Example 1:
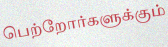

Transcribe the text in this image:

பெற்றோர்களுக்கும்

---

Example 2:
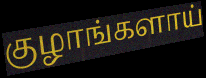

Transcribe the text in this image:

குழாங்களாய்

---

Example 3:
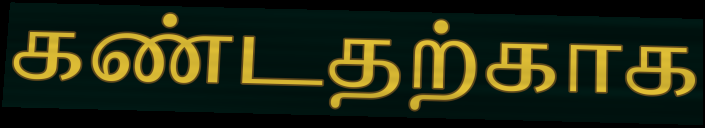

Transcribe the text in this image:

கண்டதற்காக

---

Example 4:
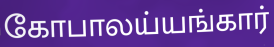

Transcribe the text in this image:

கோபாலய்யங்கார்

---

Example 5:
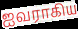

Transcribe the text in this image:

ஐவராகிய